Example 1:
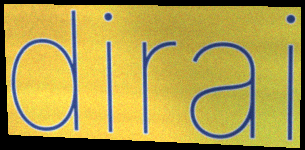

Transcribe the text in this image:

dirai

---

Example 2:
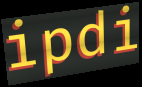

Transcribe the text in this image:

ipdi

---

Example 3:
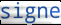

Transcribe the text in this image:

signe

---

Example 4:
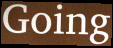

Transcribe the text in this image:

Going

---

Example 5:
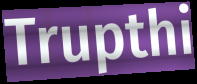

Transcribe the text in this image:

Trupthi